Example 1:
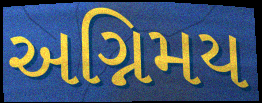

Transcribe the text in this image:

અગ્નિમય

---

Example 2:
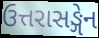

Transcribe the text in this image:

ઉત્તરાસઙ્ગેન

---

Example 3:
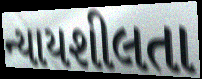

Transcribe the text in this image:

ન્યાયશીલતા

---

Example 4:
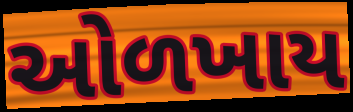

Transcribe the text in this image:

ઓળખાય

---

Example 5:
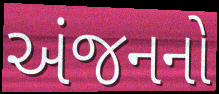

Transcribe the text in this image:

અંજનનો